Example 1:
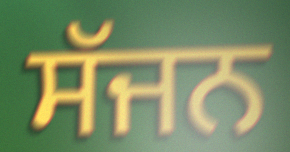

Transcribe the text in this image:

ਸੱਜਨ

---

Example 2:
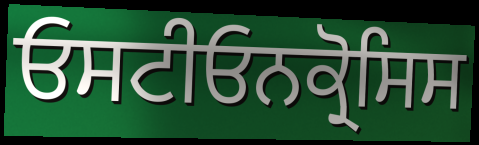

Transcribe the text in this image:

ਓਸਟੀਓਨਕ੍ਰੋਸਿਸ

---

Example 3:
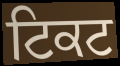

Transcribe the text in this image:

ਟਿਕਟ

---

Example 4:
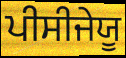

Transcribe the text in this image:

ਪੀਸੀਜੇਯੂ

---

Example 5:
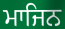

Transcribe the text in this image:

ਮਾਜਿਨ